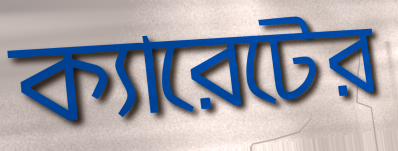
ক্যারেটের